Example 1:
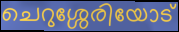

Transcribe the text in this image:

ചെറുശ്ശേരിയോട്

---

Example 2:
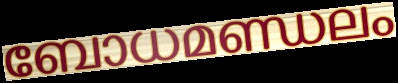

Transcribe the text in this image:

ബോധമണ്ഡലം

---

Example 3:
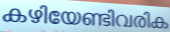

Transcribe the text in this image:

കഴിയേണ്ടിവരിക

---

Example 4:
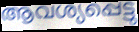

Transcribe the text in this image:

ആവശ്യപ്പെട്ടു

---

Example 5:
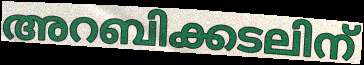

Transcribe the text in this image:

അറബിക്കടലിന്